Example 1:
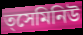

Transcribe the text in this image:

ত্সেমিনিউ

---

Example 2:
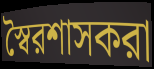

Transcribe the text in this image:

স্বৈরশাসকরা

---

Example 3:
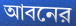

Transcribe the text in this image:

আবনের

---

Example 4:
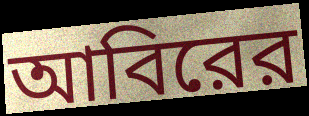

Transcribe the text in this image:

আবিরের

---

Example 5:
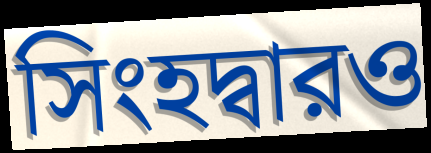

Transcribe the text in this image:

সিংহদ্বারও